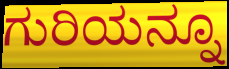
ಗುರಿಯನ್ನೂ